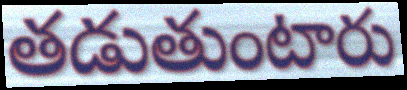
తడుతుంటారు